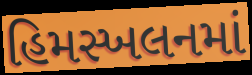
હિમસ્ખલનમાં